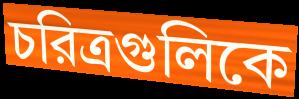
চরিত্রগুলিকে